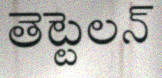
తెట్టెలన్